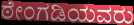
ಠೇಂಗಡಿಯವರು